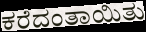
ಕರೆದಂತಾಯಿತು